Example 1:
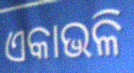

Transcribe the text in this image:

ଏକାଭଳି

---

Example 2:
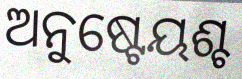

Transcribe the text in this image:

ଅନୁଷ୍ଟେୟଶ୍ଚ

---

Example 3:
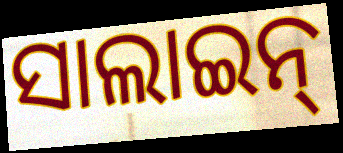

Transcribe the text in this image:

ସାଲାଇନ୍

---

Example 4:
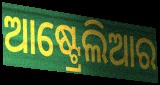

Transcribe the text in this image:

ଆଷ୍ଟ୍ରେଲିଆର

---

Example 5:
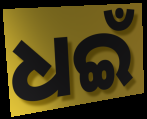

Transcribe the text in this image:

ଧଇଁ